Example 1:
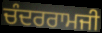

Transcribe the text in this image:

ਚੰਦਰਰਾਮਜੀ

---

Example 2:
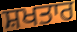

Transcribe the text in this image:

ਸ਼ਖਤਾਰ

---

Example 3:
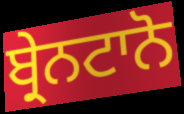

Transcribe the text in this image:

ਬ੍ਰੇਨਟਾਨੋ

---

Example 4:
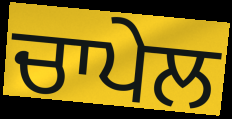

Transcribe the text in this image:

ਚਾਪੇਲ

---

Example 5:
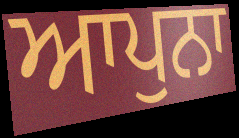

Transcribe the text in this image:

ਆਪੁਨਾ